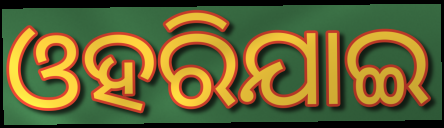
ଓହରିଯାଇ